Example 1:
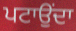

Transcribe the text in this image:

ਪਟਾਉਂਦਾ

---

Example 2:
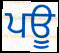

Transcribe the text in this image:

ਪਉੂ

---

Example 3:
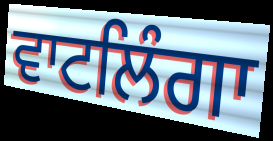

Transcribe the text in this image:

ਵਾਟਲਿੰਗਾ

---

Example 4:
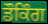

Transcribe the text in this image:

ਡੌਕਿੰਗ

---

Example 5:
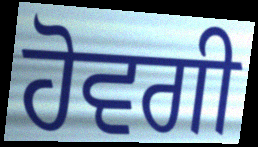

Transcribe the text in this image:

ਹੋਵਗੀ